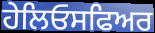
ਹੇਲਿਓਸਫਿਅਰ